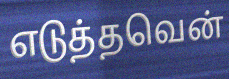
எடுத்தவென்